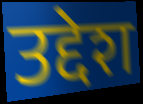
उद्देश